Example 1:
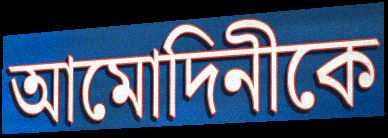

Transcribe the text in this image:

আমোদিনীকে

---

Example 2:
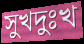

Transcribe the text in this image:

সুখদুঃখ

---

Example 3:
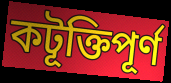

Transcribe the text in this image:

কটূক্তিপূর্ণ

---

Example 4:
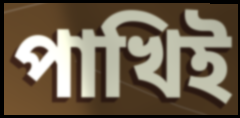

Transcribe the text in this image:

পাখিই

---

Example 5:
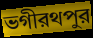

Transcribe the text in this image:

ভগীরথপুর